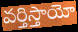
వర్తిస్తాయో